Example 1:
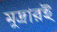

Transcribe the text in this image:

মুদ্রারই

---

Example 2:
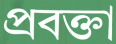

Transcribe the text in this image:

প্রবক্তা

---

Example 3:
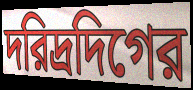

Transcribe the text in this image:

দরিদ্রদিগের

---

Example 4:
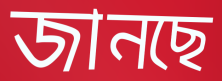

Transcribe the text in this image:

জানছে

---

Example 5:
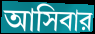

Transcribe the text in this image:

আসিবার